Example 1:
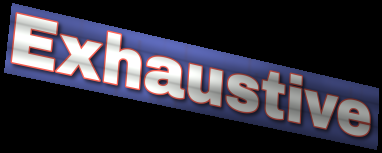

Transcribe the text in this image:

Exhaustive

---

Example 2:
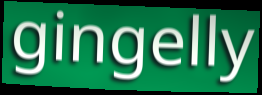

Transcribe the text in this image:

gingelly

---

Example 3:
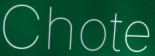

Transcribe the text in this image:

Chote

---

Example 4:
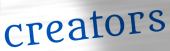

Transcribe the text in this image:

creators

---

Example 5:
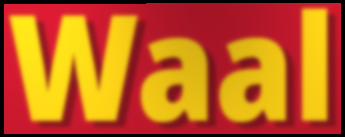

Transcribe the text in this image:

Waal